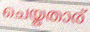
ചെയ്തതാര്